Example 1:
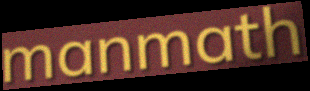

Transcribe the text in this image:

manmath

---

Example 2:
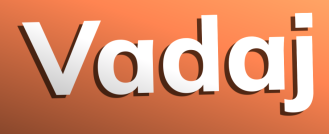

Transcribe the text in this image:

Vadaj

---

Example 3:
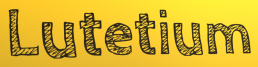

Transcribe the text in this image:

Lutetium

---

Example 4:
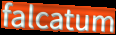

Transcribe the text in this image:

falcatum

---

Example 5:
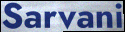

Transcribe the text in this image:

Sarvani